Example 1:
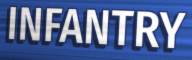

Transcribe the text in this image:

INFANTRY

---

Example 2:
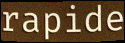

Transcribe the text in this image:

rapide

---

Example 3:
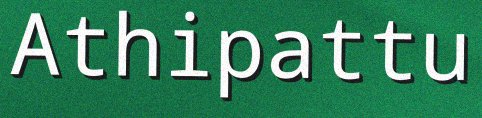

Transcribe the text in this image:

Athipattu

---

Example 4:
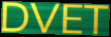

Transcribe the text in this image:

DVET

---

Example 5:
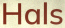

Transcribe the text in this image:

Hals